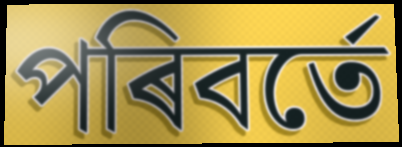
পৰিবৰ্তে